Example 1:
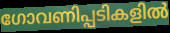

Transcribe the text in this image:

ഗോവണിപ്പടികളിൽ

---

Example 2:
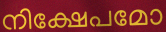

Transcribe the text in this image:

നിക്ഷേപമോ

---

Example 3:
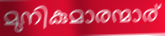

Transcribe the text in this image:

മുനികുമാരന്മാര്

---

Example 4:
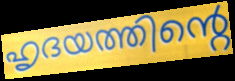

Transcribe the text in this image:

ഹൃദയത്തിന്റെ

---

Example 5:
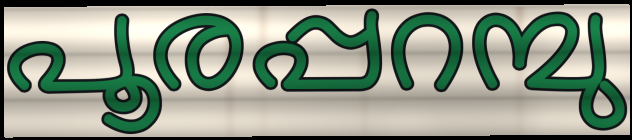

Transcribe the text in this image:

പൂരപ്പറമ്പു